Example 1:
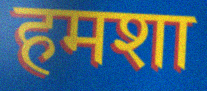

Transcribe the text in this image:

हमशा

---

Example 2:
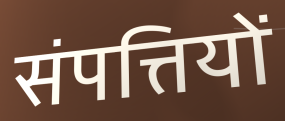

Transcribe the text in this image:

संपत्तियों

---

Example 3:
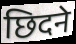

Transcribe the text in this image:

छिदने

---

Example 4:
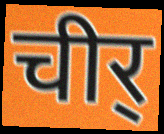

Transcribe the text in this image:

चीर्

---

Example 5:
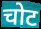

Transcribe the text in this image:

चोट